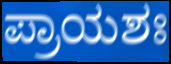
ಪ್ರಾಯಶಃ